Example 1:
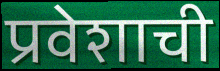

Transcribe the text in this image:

प्रवेशाची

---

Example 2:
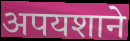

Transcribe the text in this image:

अपयशाने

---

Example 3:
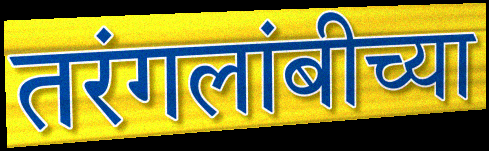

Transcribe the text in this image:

तरंगलांबीच्या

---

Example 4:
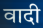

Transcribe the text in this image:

वादी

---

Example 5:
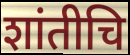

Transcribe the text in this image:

शांतीचि